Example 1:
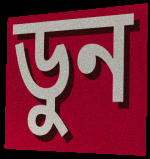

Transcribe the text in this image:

ডুন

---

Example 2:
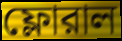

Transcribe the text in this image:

ফ্লোরাল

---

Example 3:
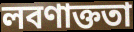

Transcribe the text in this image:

লবণাক্ততা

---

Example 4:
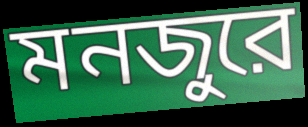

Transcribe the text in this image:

মনজুরে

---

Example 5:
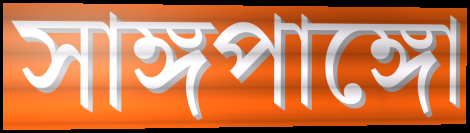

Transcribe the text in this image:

সাঙ্গপাঙ্গো